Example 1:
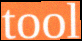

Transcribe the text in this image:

tool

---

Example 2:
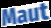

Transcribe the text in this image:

Maut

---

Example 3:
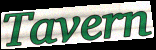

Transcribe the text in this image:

Tavern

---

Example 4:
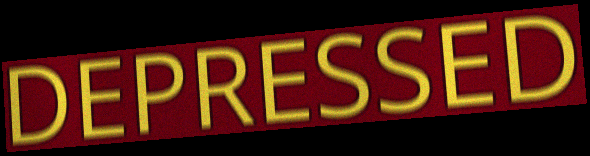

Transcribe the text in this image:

DEPRESSED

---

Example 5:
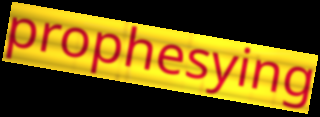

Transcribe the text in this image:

prophesying